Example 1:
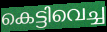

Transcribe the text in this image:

കെട്ടിവെച്ച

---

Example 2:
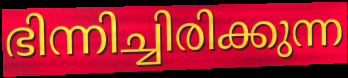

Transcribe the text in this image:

ഭിന്നിച്ചിരിക്കുന്ന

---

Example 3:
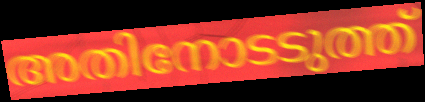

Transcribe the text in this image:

അതിനോടടുത്ത്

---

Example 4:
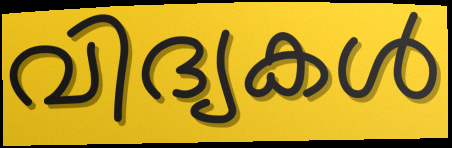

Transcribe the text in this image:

വിദ്യകൾ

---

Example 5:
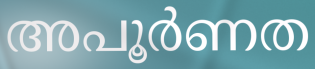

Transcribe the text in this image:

അപൂർണത